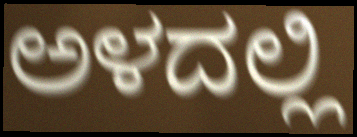
ಅಳದಲ್ಲಿ